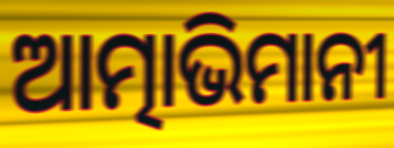
ଆତ୍ମାଭିମାନୀ